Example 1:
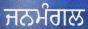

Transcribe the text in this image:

ਜਨਮੰਗਲ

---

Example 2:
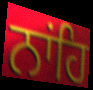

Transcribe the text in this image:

ਨਾਂਹਿ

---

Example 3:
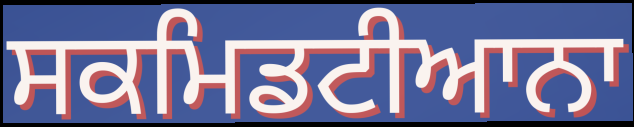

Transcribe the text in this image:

ਸਕਮਿਡਟੀਆਨਾ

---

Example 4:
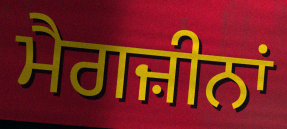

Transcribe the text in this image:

ਮੈਗਜ਼ੀਨਾਂ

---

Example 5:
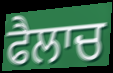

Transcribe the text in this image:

ਫੈਲਾਚ